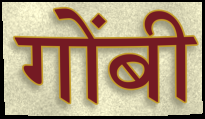
गोंबी